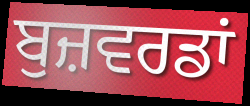
ਬੁਜ਼ਵਰਡਾਂ